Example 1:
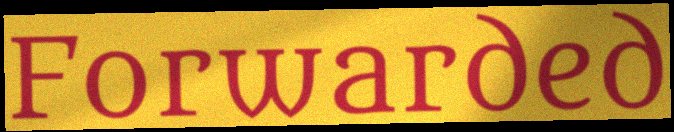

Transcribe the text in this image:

Forwarded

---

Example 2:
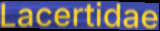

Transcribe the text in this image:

Lacertidae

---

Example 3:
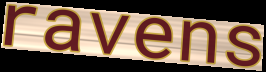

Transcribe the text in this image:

ravens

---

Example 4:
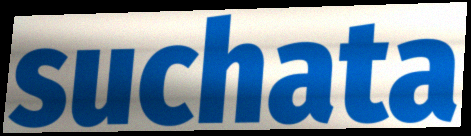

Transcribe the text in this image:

suchata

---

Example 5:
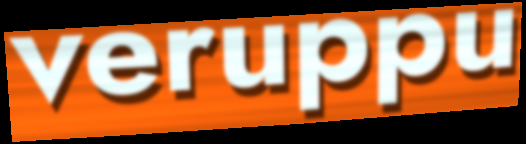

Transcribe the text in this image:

veruppu